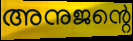
അനുജന്റെ